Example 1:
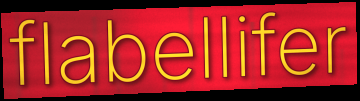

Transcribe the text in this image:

flabellifer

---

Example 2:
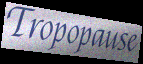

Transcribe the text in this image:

Tropopause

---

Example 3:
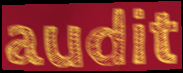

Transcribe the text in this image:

audit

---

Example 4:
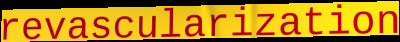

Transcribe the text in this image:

revascularization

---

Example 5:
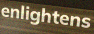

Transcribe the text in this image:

enlightens